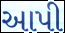
આપી